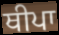
ਥੀਪਾ